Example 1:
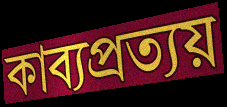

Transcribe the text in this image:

কাব্যপ্রত্যয়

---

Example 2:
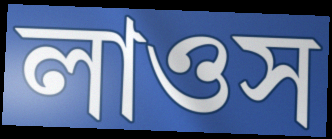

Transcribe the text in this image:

লাওস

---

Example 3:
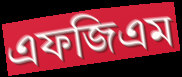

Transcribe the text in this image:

এফজিএম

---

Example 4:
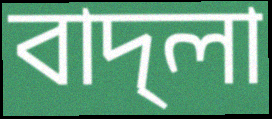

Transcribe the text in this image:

বাদ্‌লা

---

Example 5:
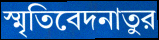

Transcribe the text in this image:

স্মৃতিবেদনাতুর